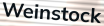
Weinstock